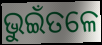
ଭୁଇଁତଳେ